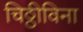
चिठ्ठीविना